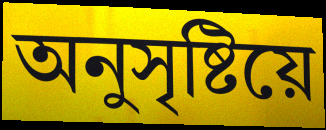
অনুসৃষ্টিয়ে